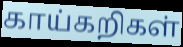
காய்கறிகள்